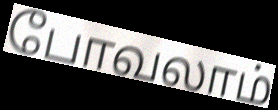
போவலாம்